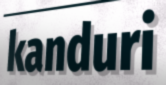
kanduri